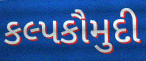
કલ્પકૌમુદી